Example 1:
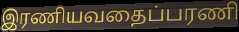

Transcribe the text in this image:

இரணியவதைப்பரணி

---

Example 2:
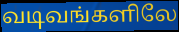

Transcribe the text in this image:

வடிவங்களிலே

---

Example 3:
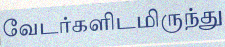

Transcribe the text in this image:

வேடர்களிடமிருந்து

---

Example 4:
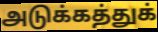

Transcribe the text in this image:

அடுக்கத்துக்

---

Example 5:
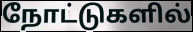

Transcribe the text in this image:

நோட்டுகளில்